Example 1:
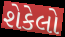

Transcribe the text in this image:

શેકેલો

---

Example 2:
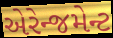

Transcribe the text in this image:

એરેન્જમેન્ટ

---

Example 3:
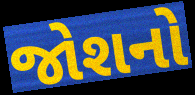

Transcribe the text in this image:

જોશનો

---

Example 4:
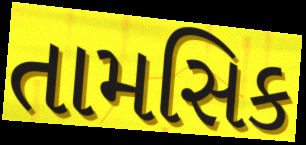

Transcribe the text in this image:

તામસિક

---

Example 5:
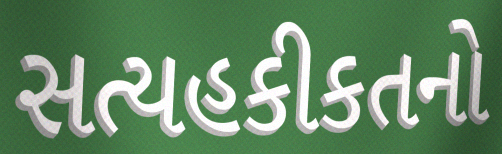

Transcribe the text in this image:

સત્યહકીકતનો